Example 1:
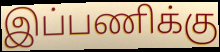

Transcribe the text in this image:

இப்பணிக்கு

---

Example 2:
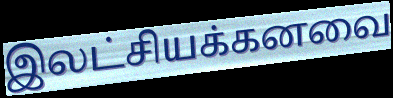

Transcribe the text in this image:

இலட்சியக்கனவை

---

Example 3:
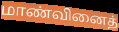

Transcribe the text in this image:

மாண்வினைத்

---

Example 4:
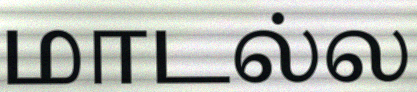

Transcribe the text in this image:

மாடல்ல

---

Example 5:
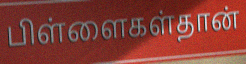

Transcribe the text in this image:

பிள்ளைகள்தான்